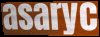
asaryc